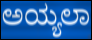
ಅಯ್ಯಲಾ